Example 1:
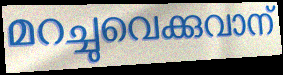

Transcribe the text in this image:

മറച്ചുവെക്കുവാന്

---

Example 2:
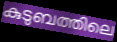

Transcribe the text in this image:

കുടുബത്തിലെ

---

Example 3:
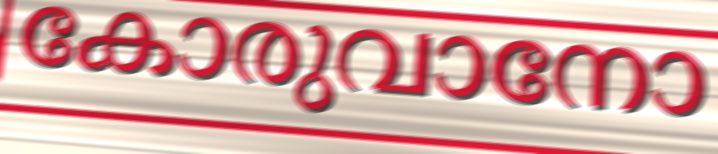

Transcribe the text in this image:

കോരുവാനോ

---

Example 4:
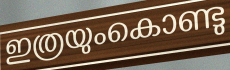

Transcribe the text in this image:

ഇത്രയുംകൊണ്ടു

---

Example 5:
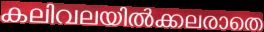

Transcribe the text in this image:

കലിവലയിൽക്കലരാതെ